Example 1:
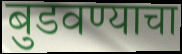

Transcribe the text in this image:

बुडवण्याचा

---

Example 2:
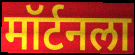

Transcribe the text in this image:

मॉर्टनला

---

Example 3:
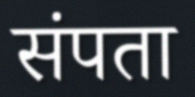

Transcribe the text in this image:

संपता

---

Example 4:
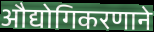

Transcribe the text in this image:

औद्योगिकरणाने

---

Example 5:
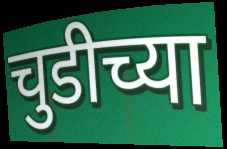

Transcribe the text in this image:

चुडीच्या